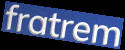
fratrem